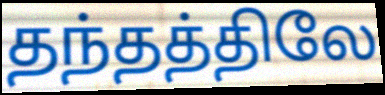
தந்தத்திலே